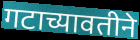
गटाच्यावतीने